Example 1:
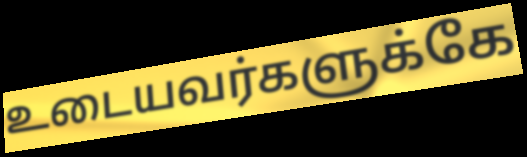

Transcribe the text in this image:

உடையவர்களுக்கே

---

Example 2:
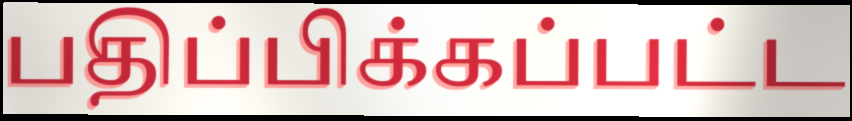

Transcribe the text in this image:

பதிப்பிக்கப்பட்ட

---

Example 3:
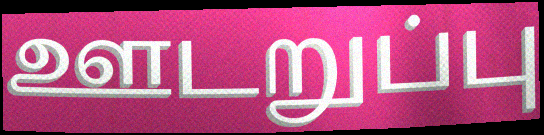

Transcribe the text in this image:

ஊடறுப்பு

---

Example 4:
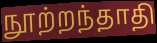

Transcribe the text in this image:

நூற்றந்தாதி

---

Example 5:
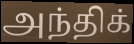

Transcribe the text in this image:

அந்திக்